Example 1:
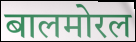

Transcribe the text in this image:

बालमोरल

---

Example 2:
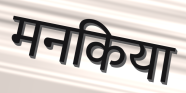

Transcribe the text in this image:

मनकिया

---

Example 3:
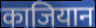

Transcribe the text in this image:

काजियान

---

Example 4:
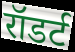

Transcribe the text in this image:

रॉडर्ट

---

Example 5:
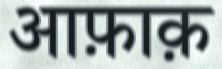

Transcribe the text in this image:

आफ़ाक़